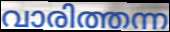
വാരിത്തന്ന